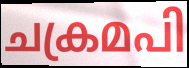
ചക്രമപി